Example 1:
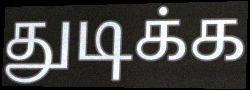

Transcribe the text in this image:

துடிக்க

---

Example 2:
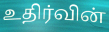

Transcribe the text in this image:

உதிர்வின்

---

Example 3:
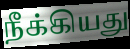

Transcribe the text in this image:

நீக்கியது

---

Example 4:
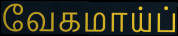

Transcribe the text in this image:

வேகமாய்ப்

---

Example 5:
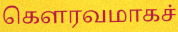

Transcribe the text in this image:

கௌரவமாகச்